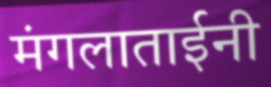
मंगलाताईनी